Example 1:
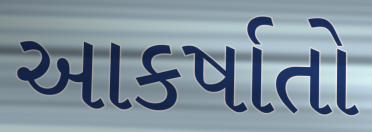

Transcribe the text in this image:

આકર્ષાતો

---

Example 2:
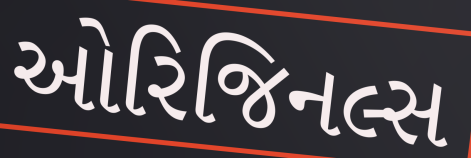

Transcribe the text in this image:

ઓરિજિનલ્સ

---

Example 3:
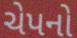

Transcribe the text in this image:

ચેપનો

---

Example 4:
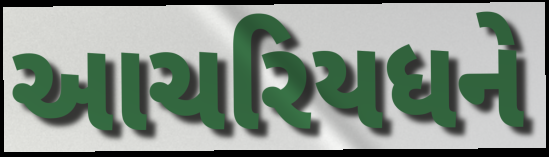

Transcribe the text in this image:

આચરિયધને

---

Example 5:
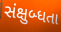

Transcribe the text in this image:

સંક્ષુબ્ધતા